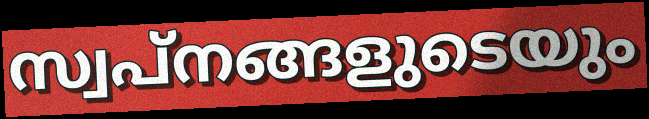
സ്വപ്നങ്ങളുടെയും